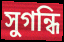
সুগন্ধি